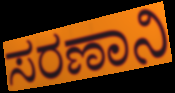
ಸರಣಾನಿ